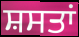
ਸ਼ਸਤਾਂ